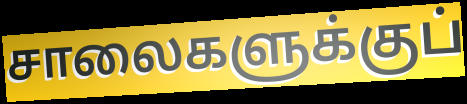
சாலைகளுக்குப்